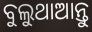
ବୁଲୁଥାଆନ୍ତୁ